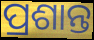
ପ୍ରଶାନ୍ତ